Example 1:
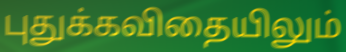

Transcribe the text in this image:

புதுக்கவிதையிலும்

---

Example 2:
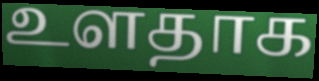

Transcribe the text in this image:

உளதாக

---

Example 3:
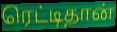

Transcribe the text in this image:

ரெட்டிதான்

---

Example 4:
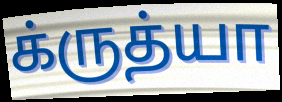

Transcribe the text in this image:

க்ருத்யா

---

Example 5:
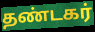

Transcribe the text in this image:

தண்டகர்